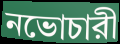
নভোচারী